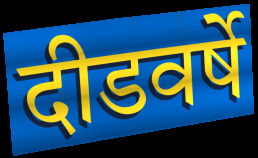
दीडवर्षे